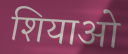
शियाओ